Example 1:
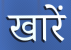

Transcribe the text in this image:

खारें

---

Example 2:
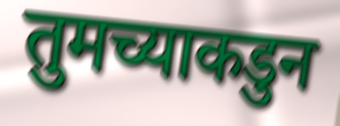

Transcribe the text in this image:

तुमच्याकडुन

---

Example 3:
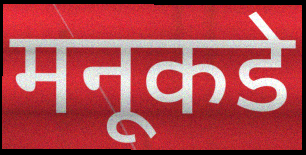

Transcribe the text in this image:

मनूकडे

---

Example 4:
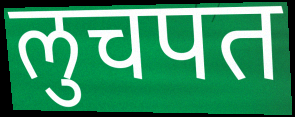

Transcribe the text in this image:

लुचपत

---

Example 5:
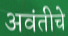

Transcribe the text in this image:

अवंतीचे